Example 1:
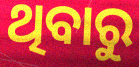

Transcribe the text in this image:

ଥିବାରୁ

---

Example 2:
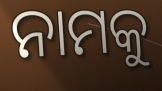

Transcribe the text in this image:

ନାମକୁ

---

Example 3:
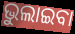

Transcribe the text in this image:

ଭୁଲାଇବା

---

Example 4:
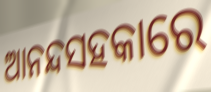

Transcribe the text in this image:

ଆନନ୍ଦସହକାରେ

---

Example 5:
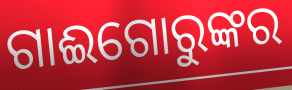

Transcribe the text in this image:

ଗାଈଗୋରୁଙ୍କର